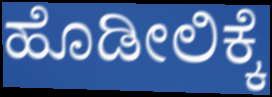
ಹೊಡೀಲಿಕ್ಕೆ